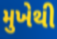
મુખેથી